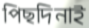
পিছদিনাই